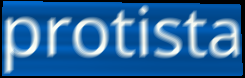
protista